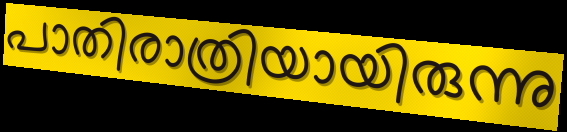
പാതിരാത്രിയായിരുന്നു